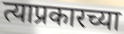
त्याप्रकारच्या